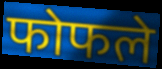
फोफले